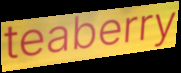
teaberry